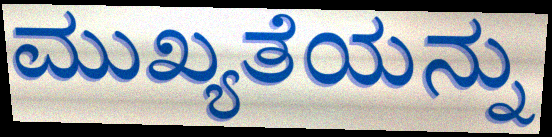
ಮುಖ್ಯತೆಯನ್ನು